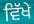
ਵਿੱਖੇ